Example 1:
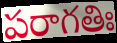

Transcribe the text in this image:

పరాగతిః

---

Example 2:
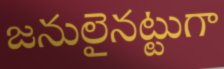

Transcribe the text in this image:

జనులైనట్టుగా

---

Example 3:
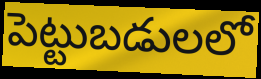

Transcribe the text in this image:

పెట్టుబడులలో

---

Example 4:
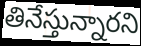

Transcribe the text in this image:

తినేస్తున్నారని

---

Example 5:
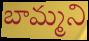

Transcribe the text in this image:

బామ్మని